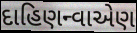
દાહિણન્વાએણ